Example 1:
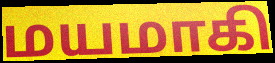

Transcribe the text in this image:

மயமாகி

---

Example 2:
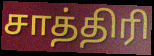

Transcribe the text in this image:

சாத்திரி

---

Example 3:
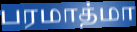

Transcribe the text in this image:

பரமாத்மா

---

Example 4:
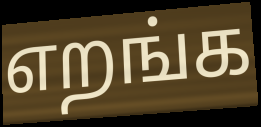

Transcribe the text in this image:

எறங்க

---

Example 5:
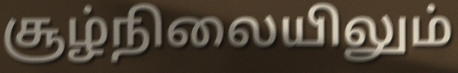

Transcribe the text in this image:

சூழ்நிலையிலும்